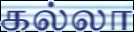
கல்லா